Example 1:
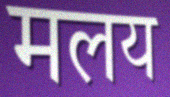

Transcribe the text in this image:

मलय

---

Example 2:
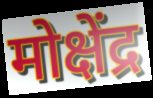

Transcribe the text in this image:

मोक्षेंद्र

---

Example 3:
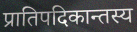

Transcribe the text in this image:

प्रातिपदिकान्तस्य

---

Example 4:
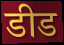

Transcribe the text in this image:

डीड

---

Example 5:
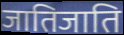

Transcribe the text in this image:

जातिजाति